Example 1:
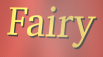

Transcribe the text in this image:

Fairy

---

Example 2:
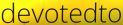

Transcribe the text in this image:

devotedto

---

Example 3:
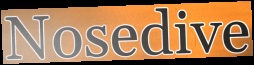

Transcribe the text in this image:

Nosedive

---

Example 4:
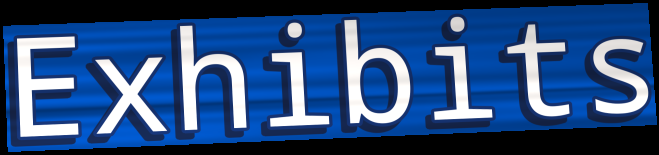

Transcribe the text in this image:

Exhibits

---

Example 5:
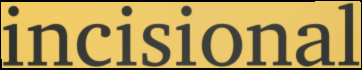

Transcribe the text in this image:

incisional